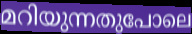
മറിയുന്നതുപോലെ